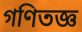
গণিতজ্ঞ